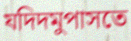
যদিদমুপাসতে